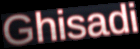
Ghisadi